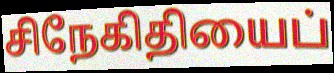
சிநேகிதியைப்